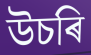
উচৰি